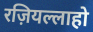
रज़ियल्लाहो